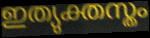
ഇത്യുക്തസ്തം